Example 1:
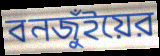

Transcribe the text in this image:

বনজুঁইয়ের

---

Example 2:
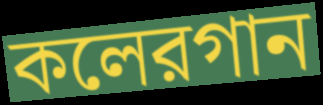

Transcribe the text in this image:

কলেরগান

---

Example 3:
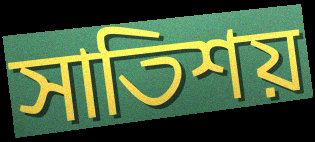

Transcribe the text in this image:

সাতিশয়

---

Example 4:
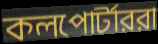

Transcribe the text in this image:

কলপোর্টাররা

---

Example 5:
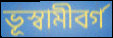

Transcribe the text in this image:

ভূস্বামীবর্গ